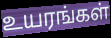
உயரங்கள்